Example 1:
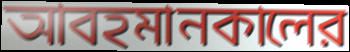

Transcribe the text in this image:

আবহমানকালের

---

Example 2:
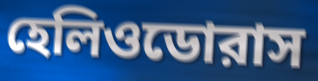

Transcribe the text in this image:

হেলিওডোরাস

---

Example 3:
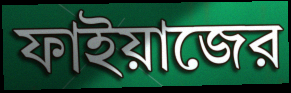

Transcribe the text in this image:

ফাইয়াজের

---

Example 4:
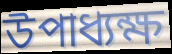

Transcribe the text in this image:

উপাধ্যক্ষ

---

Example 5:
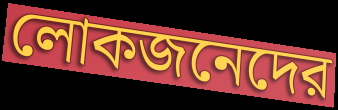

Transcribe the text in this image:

লোকজনেদের